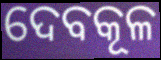
ଦେବକୂଳ